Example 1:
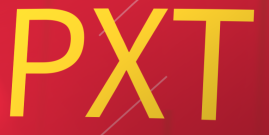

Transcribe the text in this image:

PXT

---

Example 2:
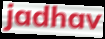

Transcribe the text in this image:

jadhav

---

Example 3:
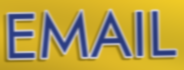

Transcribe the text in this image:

EMAIL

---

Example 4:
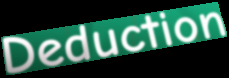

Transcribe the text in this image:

Deduction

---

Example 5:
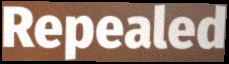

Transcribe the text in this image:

Repealed